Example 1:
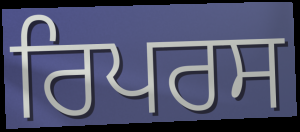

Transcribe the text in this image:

ਰਿਪਰਸ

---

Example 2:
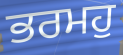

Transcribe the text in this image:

ਭਰਮਹੁ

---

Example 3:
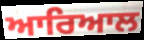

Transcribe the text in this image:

ਆਰਿਆਲ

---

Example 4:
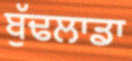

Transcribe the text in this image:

ਬੁੱਢਲਾਡਾ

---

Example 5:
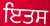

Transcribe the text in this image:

ਇਤਸ